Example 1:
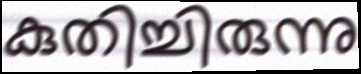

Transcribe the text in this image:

കുതിച്ചിരുന്നു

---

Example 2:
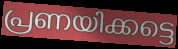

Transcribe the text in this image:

പ്രണയിക്കട്ടെ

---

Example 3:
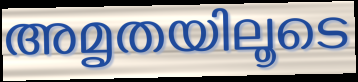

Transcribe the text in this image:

അമൃതയിലൂടെ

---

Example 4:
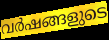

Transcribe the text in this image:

വർഷങ്ങളുടെ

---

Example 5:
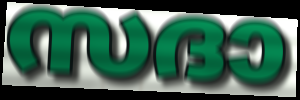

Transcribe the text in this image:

സദാ